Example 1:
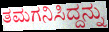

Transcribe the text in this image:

ತಮಗನಿಸಿದ್ದನ್ನು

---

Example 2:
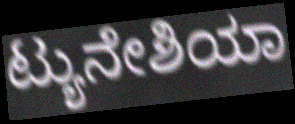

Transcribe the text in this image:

ಟ್ಯುನೇಶಿಯಾ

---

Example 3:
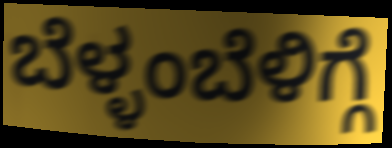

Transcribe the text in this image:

ಬೆಳ್ಳಂಬೆಳಿಗ್ಗೆ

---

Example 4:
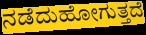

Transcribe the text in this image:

ನಡೆದುಹೋಗುತ್ತದೆ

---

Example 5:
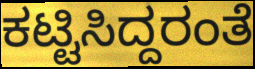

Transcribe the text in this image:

ಕಟ್ಟಿಸಿದ್ದರಂತೆ